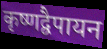
कृष्णद्वैपायन